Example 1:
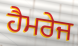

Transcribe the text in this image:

ਹੈਮਰੇਜ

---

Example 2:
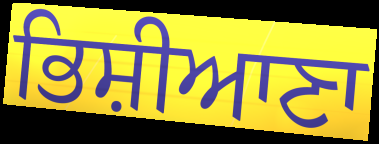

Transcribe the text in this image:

ਭਿਸ਼ੀਆਣਾ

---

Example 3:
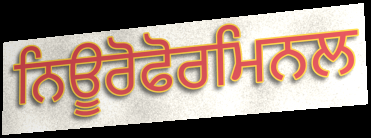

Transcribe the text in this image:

ਨਿਊਰੋਫੋਰਮਿਨਲ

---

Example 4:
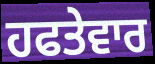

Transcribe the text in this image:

ਹਫਤੇਵਾਰ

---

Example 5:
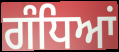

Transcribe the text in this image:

ਗੰਧਿਆਂ